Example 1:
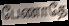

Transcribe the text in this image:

பேணாதே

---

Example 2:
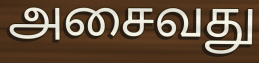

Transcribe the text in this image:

அசைவது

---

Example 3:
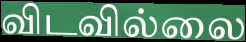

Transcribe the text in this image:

விடவில்லை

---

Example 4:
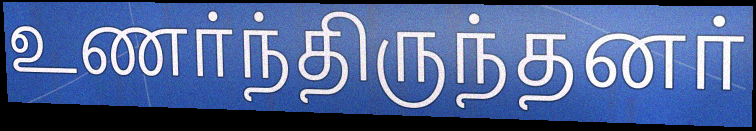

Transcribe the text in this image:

உணர்ந்திருந்தனர்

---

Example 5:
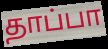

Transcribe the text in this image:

தாப்பா